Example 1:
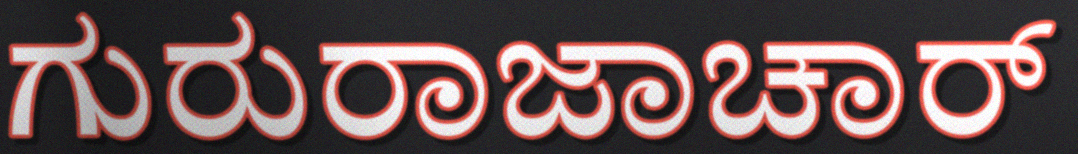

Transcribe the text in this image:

ಗುರುರಾಜಾಚಾರ್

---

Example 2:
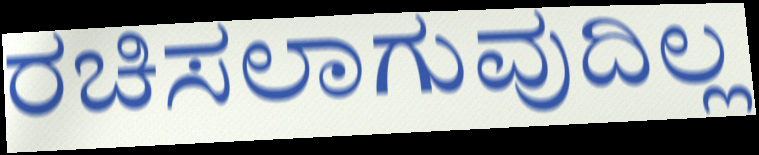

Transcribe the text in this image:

ರಚಿಸಲಾಗುವುದಿಲ್ಲ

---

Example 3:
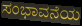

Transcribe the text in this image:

ಸಂಭಾವನೆಯ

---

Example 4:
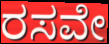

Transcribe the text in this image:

ರಸವೇ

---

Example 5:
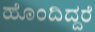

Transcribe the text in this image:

ಹೊಂದಿದ್ದರೆ